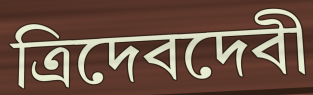
ত্রিদেবদেবী